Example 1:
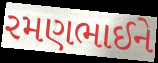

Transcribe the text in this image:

રમણભાઈને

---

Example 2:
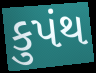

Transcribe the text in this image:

કુપંથ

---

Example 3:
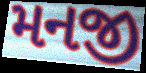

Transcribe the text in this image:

મનજી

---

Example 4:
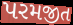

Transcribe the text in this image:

પરમજીત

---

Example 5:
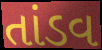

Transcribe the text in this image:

તાંડવ